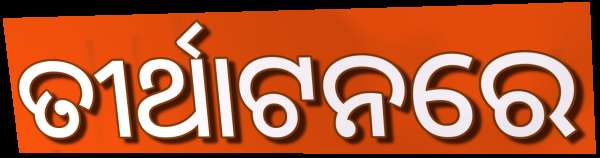
ତୀର୍ଥାଟନରେ